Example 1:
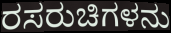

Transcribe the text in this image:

ರಸರುಚಿಗಳನು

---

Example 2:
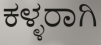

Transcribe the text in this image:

ಕಳ್ಳರಾಗಿ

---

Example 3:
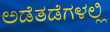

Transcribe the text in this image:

ಅಡೆತಡೆಗಳಲ್ಲಿ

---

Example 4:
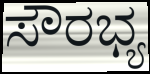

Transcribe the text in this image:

ಸೌರಭ್ಯ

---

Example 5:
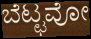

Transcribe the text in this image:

ಬೆಟ್ಟವೋ